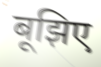
बूझिए